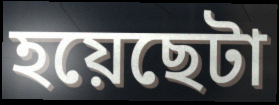
হয়েছেটা